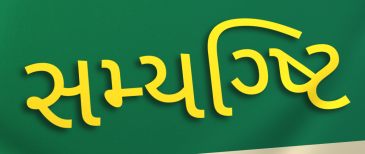
સમ્યગ્ષ્ટિ